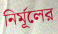
নির্মূলের